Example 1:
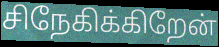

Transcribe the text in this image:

சிநேகிக்கிறேன்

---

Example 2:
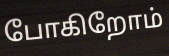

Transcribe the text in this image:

போகிறோம்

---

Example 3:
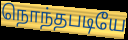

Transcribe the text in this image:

நொந்தபடியே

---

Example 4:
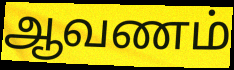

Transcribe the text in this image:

ஆவணம்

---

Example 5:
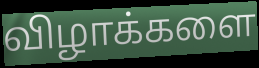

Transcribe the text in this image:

விழாக்களை